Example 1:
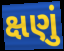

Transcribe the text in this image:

ક્ષણું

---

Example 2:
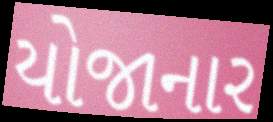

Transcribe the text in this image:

યોજાનાર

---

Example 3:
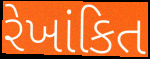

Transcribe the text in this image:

રેખાંકિત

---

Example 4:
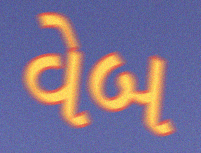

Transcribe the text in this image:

વેબ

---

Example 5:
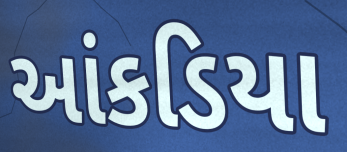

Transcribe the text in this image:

આંકડિયા